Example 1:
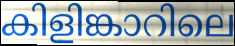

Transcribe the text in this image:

കിളിങ്കാറിലെ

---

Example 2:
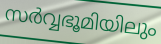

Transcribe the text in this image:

സർവ്വഭൂമിയിലും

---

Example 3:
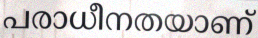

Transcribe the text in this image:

പരാധീനതയാണ്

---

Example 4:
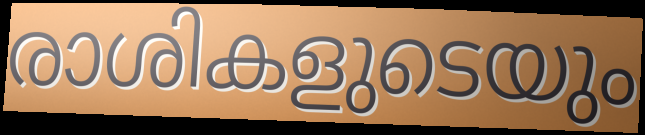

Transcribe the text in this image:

രാശികളുടെയും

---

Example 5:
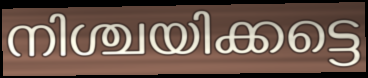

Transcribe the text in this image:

നിശ്ചയിക്കട്ടെ